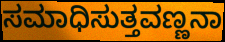
ಸಮಾಧಿಸುತ್ತವಣ್ಣನಾ